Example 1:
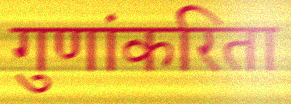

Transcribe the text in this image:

गुणांकरिता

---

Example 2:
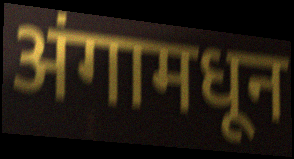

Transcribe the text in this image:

अंगामधून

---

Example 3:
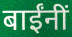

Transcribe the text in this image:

बाईंनीं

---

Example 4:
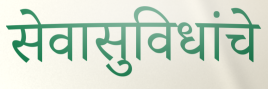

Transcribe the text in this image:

सेवासुविधांचे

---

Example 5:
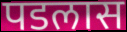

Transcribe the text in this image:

पडलास